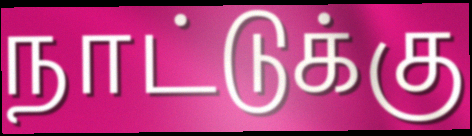
நாட்டுக்கு